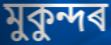
মুকুন্দৰ